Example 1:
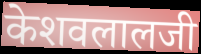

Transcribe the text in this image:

केशवलालजी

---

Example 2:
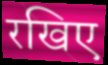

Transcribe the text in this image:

रखिए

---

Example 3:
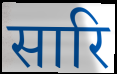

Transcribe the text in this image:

सारि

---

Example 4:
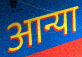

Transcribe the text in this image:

आन्या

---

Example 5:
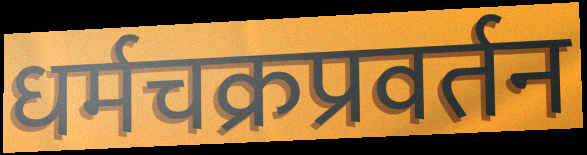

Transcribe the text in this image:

धर्मचक्रप्रवर्तन